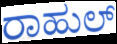
ರಾಹುಲ್